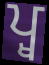
ਪ੍ਥ